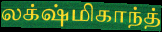
லக்‌ஷ்மிகாந்த்